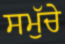
ਸਮੁੱਚੇ